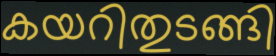
കയറിതുടങ്ങി